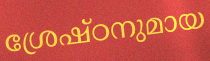
ശ്രേഷ്ഠനുമായ